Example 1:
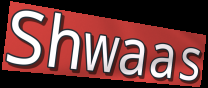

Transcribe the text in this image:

Shwaas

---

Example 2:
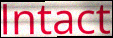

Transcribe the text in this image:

Intact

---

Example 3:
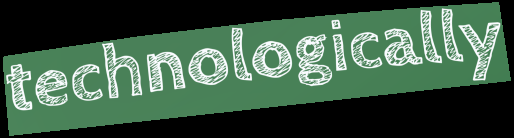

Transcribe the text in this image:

technologically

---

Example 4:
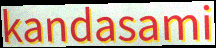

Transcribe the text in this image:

kandasami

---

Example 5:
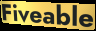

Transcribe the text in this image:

Fiveable